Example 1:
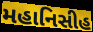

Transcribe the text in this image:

મહાનિસીહ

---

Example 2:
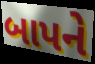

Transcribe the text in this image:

બાપને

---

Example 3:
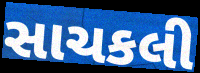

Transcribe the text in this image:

સાચકલી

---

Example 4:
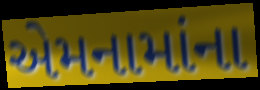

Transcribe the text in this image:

એમનામાંના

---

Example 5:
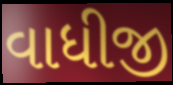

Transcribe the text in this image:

વાધીજી